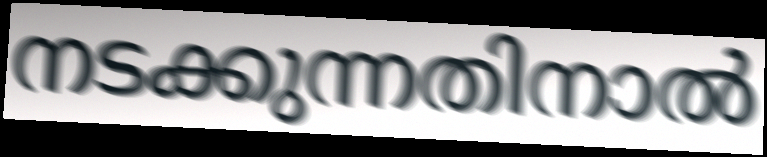
നടക്കുന്നതിനാൽ